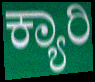
ಕ್ಯಾರಿ